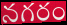
నగరం